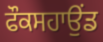
ਫੌਕਸਹਾਉਂਡ